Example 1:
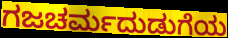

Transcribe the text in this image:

ಗಜಚರ್ಮದುಡುಗೆಯ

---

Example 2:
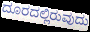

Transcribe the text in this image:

ದೂರದಲ್ಲಿರುವುದು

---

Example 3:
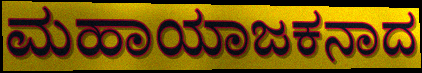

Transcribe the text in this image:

ಮಹಾಯಾಜಕನಾದ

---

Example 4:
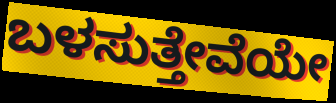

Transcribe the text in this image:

ಬಳಸುತ್ತೇವೆಯೇ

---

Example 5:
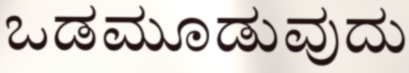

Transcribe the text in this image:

ಒಡಮೂಡುವುದು